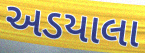
અડયાલા